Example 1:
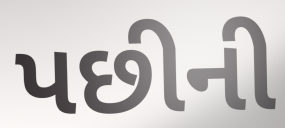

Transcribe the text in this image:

પછીની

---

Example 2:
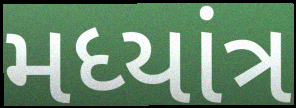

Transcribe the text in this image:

મધ્યાંત્ર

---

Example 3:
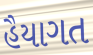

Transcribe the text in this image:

હૈયાગત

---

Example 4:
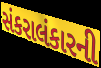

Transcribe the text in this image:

સંકરાલંકારની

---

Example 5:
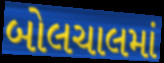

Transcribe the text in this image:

બોલચાલમાં